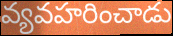
వ్యవహరించాడు